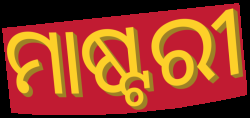
ମାଷ୍ଟରୀ